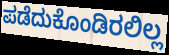
ಪಡೆದುಕೊಂಡಿರಲಿಲ್ಲ